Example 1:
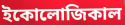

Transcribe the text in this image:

ইকোলোজিকাল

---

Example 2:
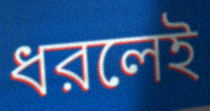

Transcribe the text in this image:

ধরলেই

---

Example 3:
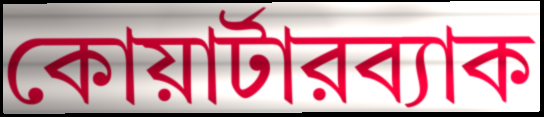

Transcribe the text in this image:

কোয়ার্টারব্যাক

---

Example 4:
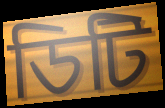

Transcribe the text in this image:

ডিটি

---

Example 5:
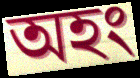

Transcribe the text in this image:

অহং